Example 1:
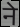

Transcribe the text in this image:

ने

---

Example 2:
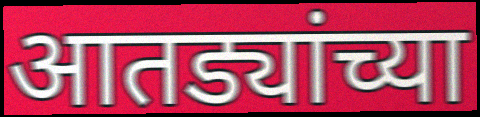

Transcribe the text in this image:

आतड्यांच्या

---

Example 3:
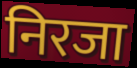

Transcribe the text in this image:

निरजा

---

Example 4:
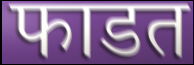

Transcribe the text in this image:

फाडत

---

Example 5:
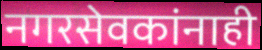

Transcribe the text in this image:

नगरसेवकांनाही